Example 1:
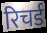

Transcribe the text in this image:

रिचर्ड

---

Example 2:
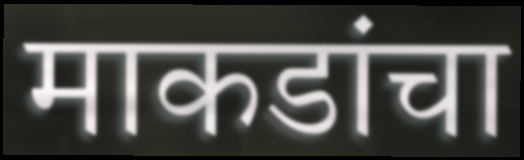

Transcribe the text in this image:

माकडांचा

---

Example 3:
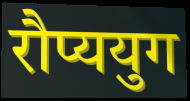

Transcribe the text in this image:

रौप्ययुग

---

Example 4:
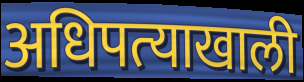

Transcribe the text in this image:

अधिपत्‍याखाली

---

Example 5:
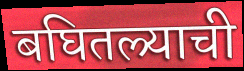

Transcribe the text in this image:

बघितल्याची